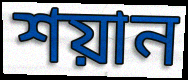
শয়ান